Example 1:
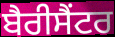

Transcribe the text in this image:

ਬੈਰੀਸੈਂਟਰ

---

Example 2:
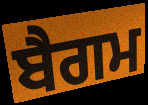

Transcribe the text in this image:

ਬੈਗਮ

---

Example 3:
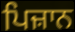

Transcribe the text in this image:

ਪਿਜ਼ਾਨ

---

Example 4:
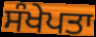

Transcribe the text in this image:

ਸੰਖੇਪਤਾ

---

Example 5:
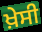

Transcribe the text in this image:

ਖ਼ੇਸੀ